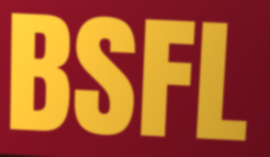
BSFL